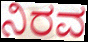
ನಿರವ